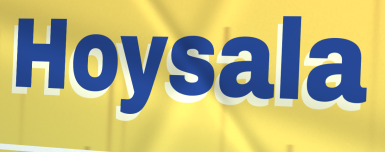
Hoysala